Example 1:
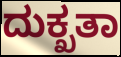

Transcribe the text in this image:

ದುಕ್ಖತಾ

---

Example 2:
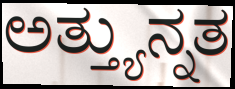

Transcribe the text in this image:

ಅತ್ತ್ಯುನ್ನತ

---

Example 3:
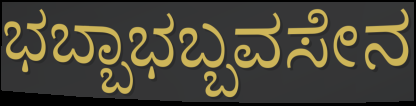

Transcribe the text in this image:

ಭಬ್ಬಾಭಬ್ಬವಸೇನ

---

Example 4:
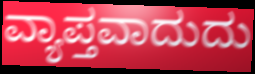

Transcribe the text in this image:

ವ್ಯಾಪ್ತವಾದುದು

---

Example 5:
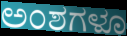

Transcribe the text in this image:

ಅಂಶಗಳೂ